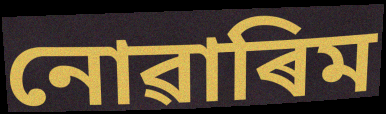
নোৱাৰিম